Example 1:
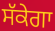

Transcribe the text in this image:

ਸੱਕੇਗਾ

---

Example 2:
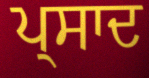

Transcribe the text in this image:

ਪ੍ਸਾਦ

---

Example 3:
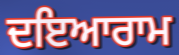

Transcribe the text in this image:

ਦਇਆਰਾਮ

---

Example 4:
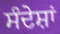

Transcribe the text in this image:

ਸੰਦੇਸ਼ਾਂ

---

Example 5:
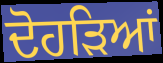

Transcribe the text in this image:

ਦੋਹੜਿਆਂ